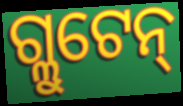
ଗ୍ଲୁଟେନ୍